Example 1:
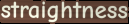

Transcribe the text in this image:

straightness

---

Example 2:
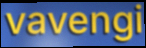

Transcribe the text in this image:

vavengi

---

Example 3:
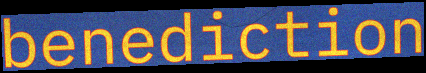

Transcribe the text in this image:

benediction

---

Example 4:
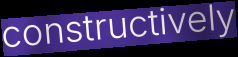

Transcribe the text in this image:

constructively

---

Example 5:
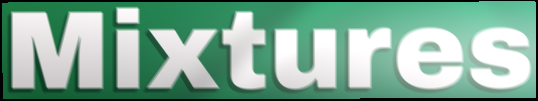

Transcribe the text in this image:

Mixtures